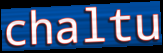
chaltu